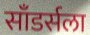
साँडर्सला